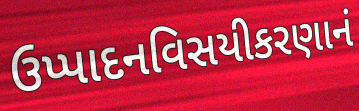
ઉપ્પાદનવિસયીકરણાનં